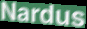
Nardus